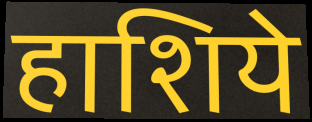
हाशिये